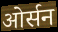
ओर्सन